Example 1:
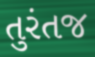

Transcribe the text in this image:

તુરંતજ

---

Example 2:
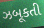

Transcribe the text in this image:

ઝબૂકતી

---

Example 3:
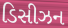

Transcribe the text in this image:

ડિસીઝન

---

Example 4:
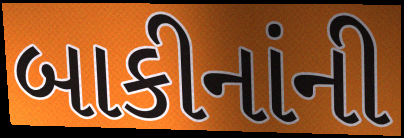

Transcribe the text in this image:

બાકીનાંની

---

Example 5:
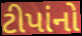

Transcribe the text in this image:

ટીપાંનો